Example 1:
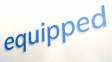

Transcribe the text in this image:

equipped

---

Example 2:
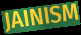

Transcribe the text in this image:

JAINISM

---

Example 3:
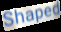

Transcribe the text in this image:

Shaped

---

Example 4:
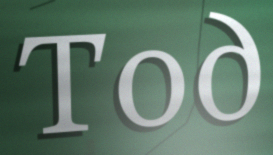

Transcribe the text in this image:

Tod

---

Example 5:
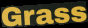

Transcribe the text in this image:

Grass